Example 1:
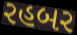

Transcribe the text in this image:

રહબર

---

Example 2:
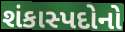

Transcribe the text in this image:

શંકાસ્પદોનો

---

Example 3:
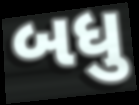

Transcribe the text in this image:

બધુ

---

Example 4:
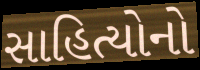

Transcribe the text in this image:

સાહિત્યોનો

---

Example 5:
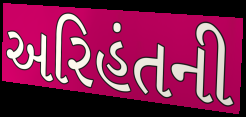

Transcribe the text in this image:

અરિહંતની